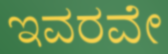
ಇವರವೇ